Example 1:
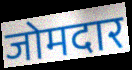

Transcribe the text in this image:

जोमदार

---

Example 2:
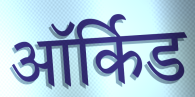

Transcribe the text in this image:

ऑर्किड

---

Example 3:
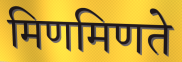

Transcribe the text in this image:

मिणमिणते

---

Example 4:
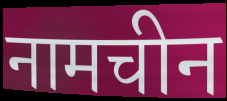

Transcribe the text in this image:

नामचीन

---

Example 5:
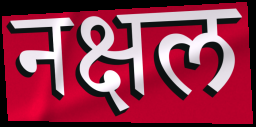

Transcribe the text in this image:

नक्षल